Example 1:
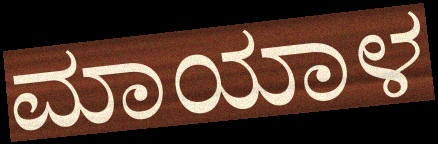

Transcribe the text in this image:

ಮಾಯಾಳ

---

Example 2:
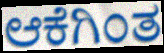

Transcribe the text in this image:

ಆಕೆಗಿಂತ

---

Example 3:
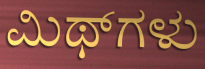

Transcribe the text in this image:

ಮಿಥ್‌ಗಳು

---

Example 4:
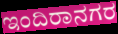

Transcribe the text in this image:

ಇಂದಿರಾನಗರ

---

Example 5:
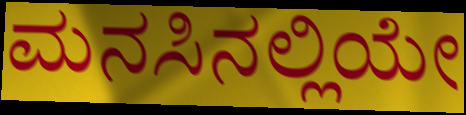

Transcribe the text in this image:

ಮನಸಿನಲ್ಲಿಯೇ